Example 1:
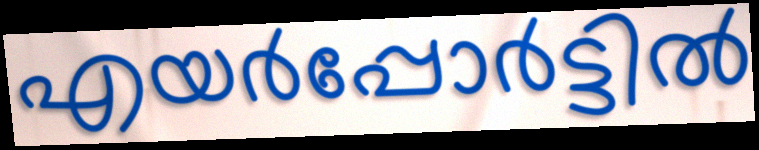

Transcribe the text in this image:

എയർപ്പോർട്ടിൽ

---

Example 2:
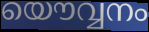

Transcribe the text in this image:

യൌവ്വനം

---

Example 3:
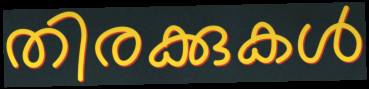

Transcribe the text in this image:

തിരക്കുകൾ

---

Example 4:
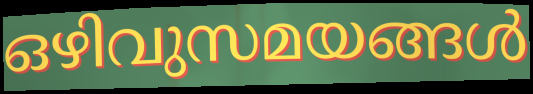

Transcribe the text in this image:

ഒഴിവുസമയങ്ങൾ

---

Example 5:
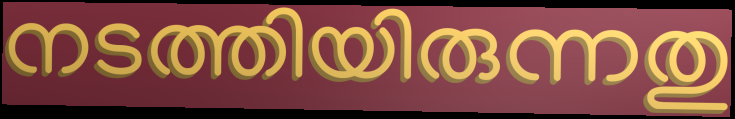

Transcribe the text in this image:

നടത്തിയിരുന്നതു